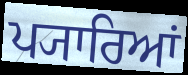
ਪ੍ਯਾਰਿਆਂ